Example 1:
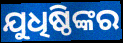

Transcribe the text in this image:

ଯୁଧିଷ୍ଠିଙ୍କର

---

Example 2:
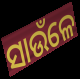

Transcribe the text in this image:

ସାଉଁଳେ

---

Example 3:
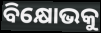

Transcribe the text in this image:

ବିକ୍ଷୋଭକୁ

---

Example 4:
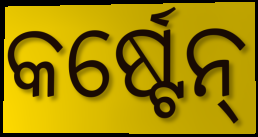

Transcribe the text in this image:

କର୍ଷ୍ଟେନ୍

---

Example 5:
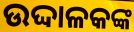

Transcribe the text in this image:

ଉଦ୍ଦାଳକଙ୍କ